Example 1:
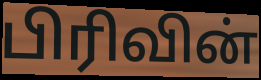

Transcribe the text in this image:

பிரிவின்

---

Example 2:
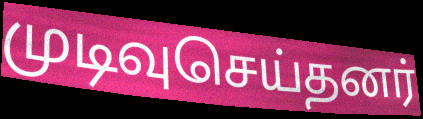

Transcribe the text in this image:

முடிவுசெய்தனர்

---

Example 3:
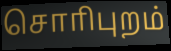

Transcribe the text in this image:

சொரிபுறம்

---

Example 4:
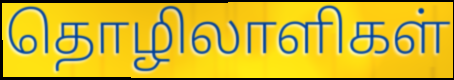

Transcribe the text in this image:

தொழிலாளிகள்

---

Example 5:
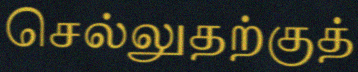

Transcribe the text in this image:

செல்லுதற்குத்